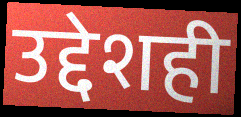
उद्देशही